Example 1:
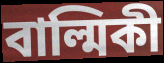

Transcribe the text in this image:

বাল্মিকী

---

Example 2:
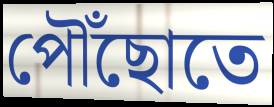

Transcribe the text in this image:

পৌঁছোতে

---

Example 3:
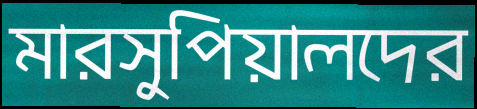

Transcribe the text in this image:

মারসুপিয়ালদের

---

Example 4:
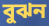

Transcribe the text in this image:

বুঝন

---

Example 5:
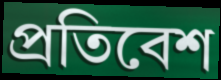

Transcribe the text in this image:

প্রতিবেশ